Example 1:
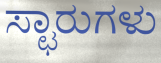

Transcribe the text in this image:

ಸ್ಟಾರುಗಳು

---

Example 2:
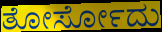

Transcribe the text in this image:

ತೋರ್ಸೋದು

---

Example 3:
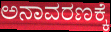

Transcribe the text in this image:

ಅನಾವರಣಕ್ಕೆ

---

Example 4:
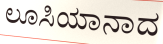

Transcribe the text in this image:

ಲೂಸಿಯಾನಾದ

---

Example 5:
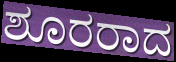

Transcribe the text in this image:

ಶೂರರಾದ